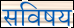
सविषय